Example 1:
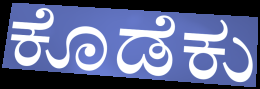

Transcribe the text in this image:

ಕೊಡೆಕು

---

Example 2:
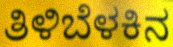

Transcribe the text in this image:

ತಿಳಿಬೆಳಕಿನ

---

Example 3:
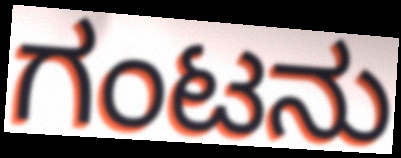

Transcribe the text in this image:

ಗಂಟನು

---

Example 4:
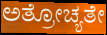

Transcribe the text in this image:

ಅತ್ರೋಚ್ಯತೇ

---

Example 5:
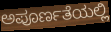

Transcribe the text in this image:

ಅಪೂರ್ಣತೆಯಲ್ಲಿ